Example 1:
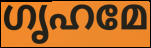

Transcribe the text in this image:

ഗൃഹമേ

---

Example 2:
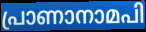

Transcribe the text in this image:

പ്രാണാനാമപി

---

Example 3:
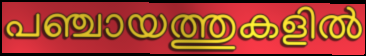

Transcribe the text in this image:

പഞ്ചായത്തുകളിൽ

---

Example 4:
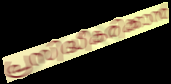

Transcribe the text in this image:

പ്രസിദ്ധീകരിക്കാൻ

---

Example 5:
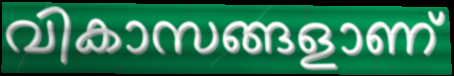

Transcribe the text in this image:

വികാസങ്ങളാണ്